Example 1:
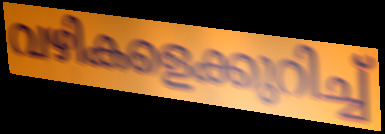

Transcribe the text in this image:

വഴികളെക്കുറിച്ച്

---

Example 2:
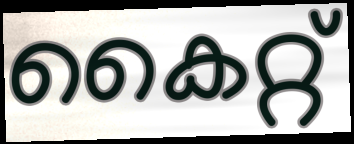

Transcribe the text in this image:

കൈറ്റ്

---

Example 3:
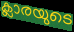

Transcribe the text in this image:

ക്ലാരയുടെ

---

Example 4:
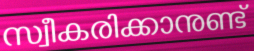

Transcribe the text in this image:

സ്വീകരിക്കാനുണ്ട്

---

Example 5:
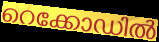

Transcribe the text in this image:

റെക്കോഡിൽ